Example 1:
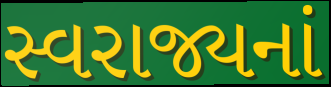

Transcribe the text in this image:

સ્વરાજ્યનાં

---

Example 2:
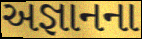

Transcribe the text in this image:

અજ્ઞાનના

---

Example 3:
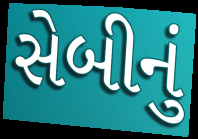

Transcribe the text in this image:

સેબીનું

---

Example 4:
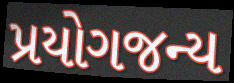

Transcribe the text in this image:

પ્રયોગજન્ય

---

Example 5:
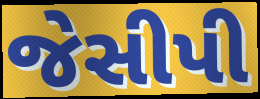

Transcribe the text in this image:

જેસીપી